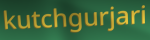
kutchgurjari